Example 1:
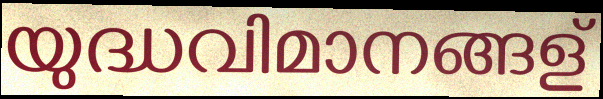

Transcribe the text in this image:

യുദ്ധവിമാനങ്ങള്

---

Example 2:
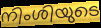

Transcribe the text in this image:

നിംശിയുടെ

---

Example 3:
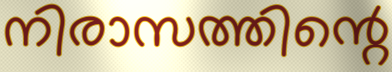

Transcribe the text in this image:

നിരാസത്തിന്റെ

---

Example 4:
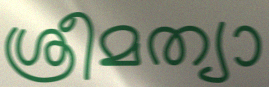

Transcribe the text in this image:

ശ്രീമത്യാ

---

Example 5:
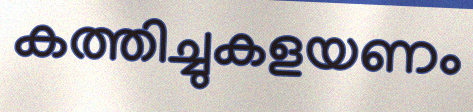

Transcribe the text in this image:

കത്തിച്ചുകളയണം